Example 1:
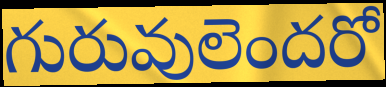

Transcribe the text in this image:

గురువులెందరో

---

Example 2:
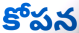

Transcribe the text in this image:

కోపన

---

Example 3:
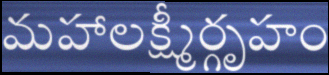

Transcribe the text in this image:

మహాలక్ష్మీర్గృహం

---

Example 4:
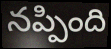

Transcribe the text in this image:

నప్పింది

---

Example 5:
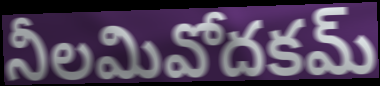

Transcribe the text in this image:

నీలమివోదకమ్